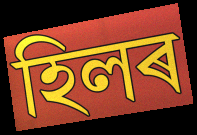
হিলৰ